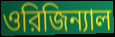
ওরিজিন্যাল